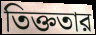
তিক্ততার